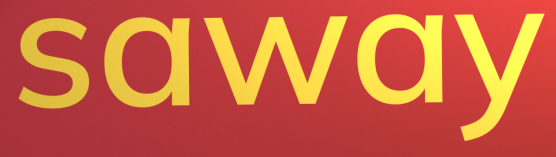
saway